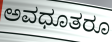
ಅವಧೂತರೂ